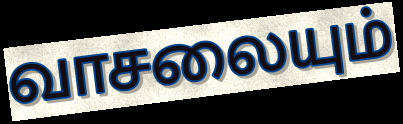
வாசலையும்